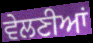
ਵੇਲਣੀਆਂ